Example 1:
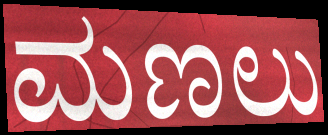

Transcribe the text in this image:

ಮಣಲು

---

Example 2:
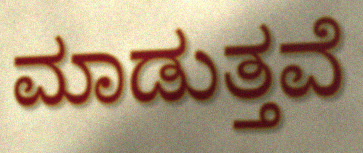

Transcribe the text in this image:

ಮಾಡುತ್ತವೆ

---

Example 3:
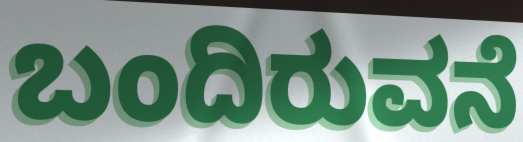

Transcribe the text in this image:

ಬಂದಿರುವನೆ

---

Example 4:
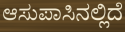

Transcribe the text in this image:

ಆಸುಪಾಸಿನಲ್ಲಿದೆ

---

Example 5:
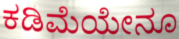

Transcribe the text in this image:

ಕಡಿಮೆಯೇನೂ